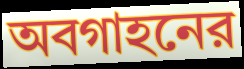
অবগাহনের